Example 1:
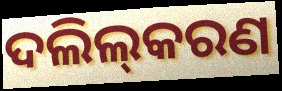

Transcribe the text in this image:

ଦଲିଲ୍‌କରଣ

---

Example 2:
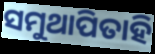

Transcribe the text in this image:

ସମୁଥାପିତାହି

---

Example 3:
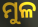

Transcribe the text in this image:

ମୁଳ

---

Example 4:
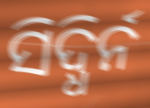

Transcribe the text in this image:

ସିଦ୍ଧିର୍ନ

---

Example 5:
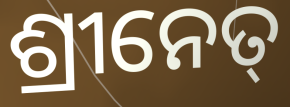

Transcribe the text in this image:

ଶ୍ରୀନେତ୍